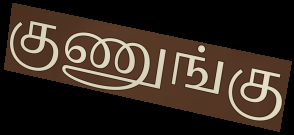
குணுங்கு